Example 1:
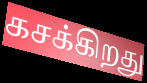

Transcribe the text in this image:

கசக்கிறது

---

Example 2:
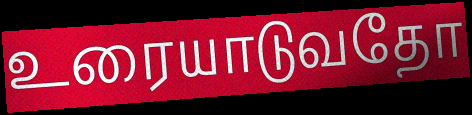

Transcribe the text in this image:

உரையாடுவதோ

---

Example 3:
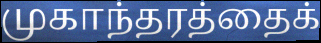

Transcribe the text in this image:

முகாந்தரத்தைக்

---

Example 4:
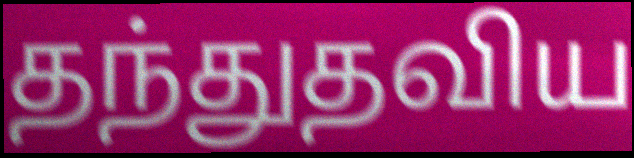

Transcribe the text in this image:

தந்துதவிய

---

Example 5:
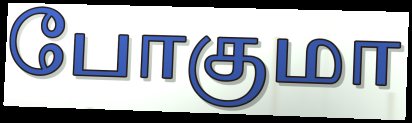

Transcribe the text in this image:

போகுமா